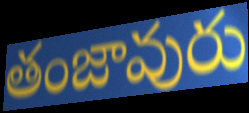
తంజావురు